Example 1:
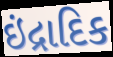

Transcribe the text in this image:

ઇંદ્રાદિક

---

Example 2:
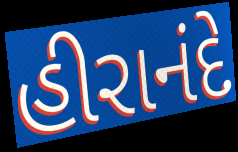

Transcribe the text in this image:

હીરાનંદે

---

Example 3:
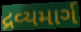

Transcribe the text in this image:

દ્રવ્યમાર્ગ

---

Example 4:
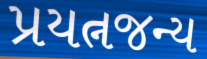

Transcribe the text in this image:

પ્રયત્નજન્ય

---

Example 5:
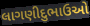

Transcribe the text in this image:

લાગણીદુભાઉઓ